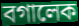
বগালেক